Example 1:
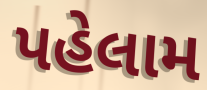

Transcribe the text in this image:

પહેલામ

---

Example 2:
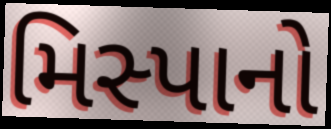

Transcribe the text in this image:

મિસ્પાનો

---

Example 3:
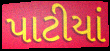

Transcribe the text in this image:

પાટીયાં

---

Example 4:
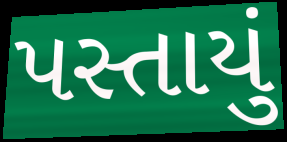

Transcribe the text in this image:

પસ્તાયું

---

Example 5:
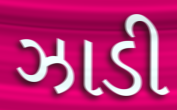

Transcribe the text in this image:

ઝાડી